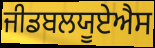
ਜੀਡਬਲਯੂਏਐਸ